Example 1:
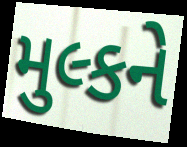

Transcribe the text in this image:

મુલ્કને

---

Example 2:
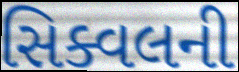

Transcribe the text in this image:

સિક્વલની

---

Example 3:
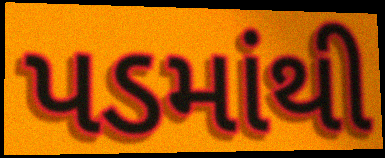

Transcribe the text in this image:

પડમાંથી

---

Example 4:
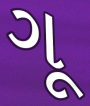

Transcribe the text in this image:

ગૂ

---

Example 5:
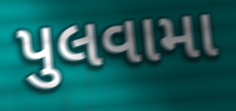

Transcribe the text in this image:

પુલવામા